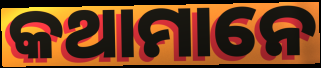
କଥାମାନେ